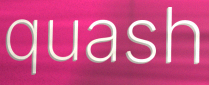
quash